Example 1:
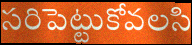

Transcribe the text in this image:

సరిపెట్టుకోవలసి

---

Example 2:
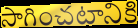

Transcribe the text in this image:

సాగించటానికి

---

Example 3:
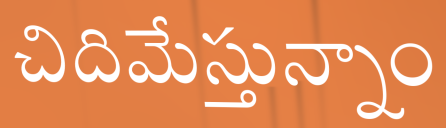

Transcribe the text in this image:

చిదిమేస్తున్నాం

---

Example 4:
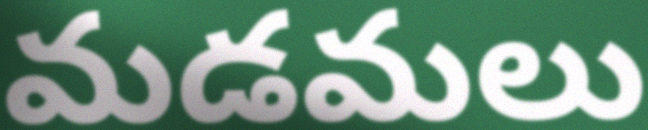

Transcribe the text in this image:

మడమలు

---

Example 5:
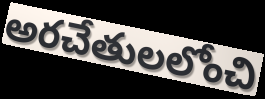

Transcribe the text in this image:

అరచేతులలోంచి